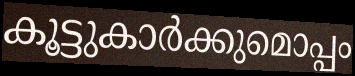
കൂട്ടുകാർക്കുമൊപ്പം